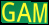
GAM